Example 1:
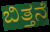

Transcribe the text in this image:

ಬಿತ್ತನೆ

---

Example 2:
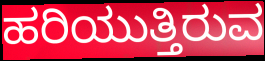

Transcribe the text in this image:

ಹರಿಯುತ್ತಿರುವ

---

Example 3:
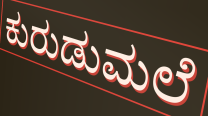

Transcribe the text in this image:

ಕುರುಡುಮಲೆ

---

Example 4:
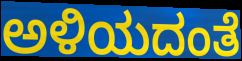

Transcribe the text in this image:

ಅಳಿಯದಂತೆ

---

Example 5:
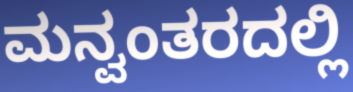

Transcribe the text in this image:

ಮನ್ವಂತರದಲ್ಲಿ